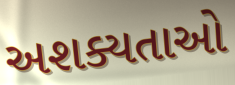
અશક્યતાઓ